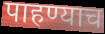
पाहण्याच